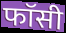
फॉसी